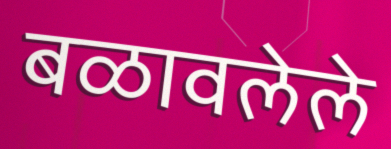
बळावलेले